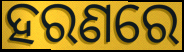
ହରଣରେ